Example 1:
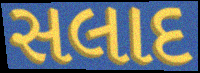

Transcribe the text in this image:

સલાદ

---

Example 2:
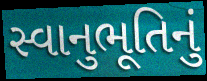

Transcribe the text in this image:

સ્વાનુભૂતિનું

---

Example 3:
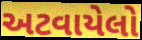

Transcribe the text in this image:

અટવાયેલો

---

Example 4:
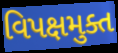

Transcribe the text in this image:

વિપક્ષમુક્ત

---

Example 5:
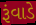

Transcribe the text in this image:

રૂંવાડે